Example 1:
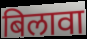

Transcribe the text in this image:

बिलावा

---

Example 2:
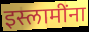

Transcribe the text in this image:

इस्लामींना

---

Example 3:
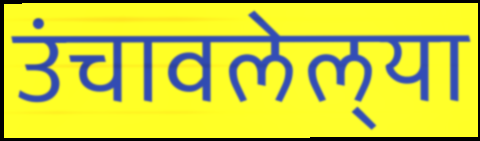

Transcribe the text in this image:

उंचावलेल्या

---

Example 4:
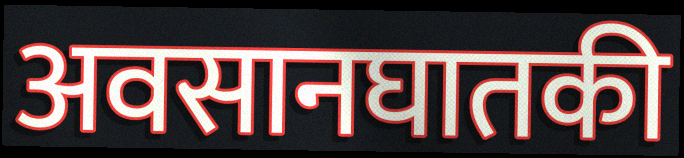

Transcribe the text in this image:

अवसानघातकी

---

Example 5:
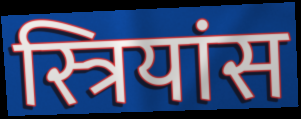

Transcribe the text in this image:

स्त्रियांस